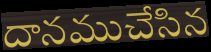
దానముచేసిన